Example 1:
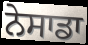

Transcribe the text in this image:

ਨੇਸਾਡਾ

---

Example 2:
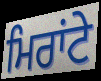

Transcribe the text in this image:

ਮਿਰਾਂਟੇ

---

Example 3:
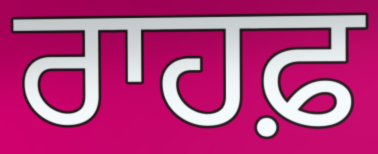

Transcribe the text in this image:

ਰਾਹਫ਼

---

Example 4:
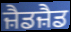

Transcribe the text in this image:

ਜ਼ੈਡਜ਼ੈਡ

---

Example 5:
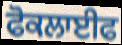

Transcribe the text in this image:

ਫੋਕਲਾਈਫ